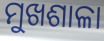
ମୁଖଶାଳା